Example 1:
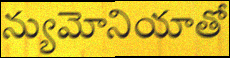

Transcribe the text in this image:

న్యుమోనియాతో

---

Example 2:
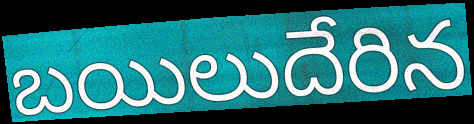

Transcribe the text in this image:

బయిలుదేరిన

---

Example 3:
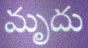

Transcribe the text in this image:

మృదు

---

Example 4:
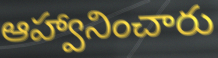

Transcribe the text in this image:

ఆహ్వానించారు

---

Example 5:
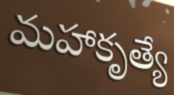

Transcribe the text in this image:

మహాకృత్యే